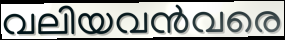
വലിയവൻവരെ